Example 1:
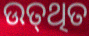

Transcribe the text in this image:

ଉତ୍‍ଥିତ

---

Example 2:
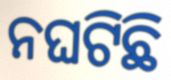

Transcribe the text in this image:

ନଘଟିଛି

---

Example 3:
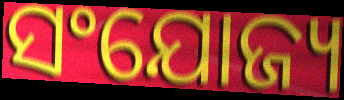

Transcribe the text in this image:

ସଂଯୋଜ୍ୟ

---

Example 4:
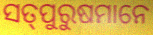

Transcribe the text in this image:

ସତ୍‌ପୁରୁଷମାନେ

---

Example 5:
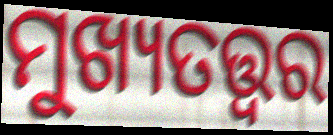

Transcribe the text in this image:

ମୁଖ୍ୟତତ୍ତ୍ୱର